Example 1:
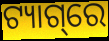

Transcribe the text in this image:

ଟ୍ୟାଗ୍‌ରେ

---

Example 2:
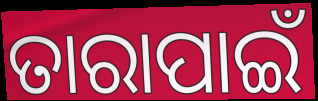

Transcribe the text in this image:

ତାରାପାଇଁ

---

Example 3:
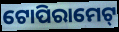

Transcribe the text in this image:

ଟୋପିରାମେଟ୍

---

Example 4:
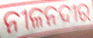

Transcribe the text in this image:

ନୀଳନଦୀର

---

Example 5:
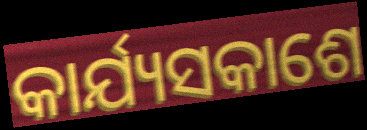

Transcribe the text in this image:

କାର୍ଯ୍ୟସକାଶେ